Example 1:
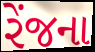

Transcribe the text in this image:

રેંજના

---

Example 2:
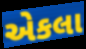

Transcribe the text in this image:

એકલા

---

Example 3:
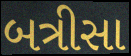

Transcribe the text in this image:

બત્રીસા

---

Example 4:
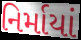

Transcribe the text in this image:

નિર્માયાં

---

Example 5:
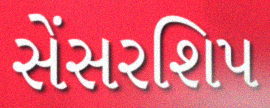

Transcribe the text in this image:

સેંસરશિપ